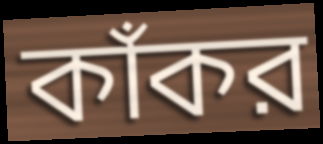
কাঁকর